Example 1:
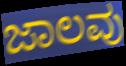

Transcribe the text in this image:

ಜಾಲವು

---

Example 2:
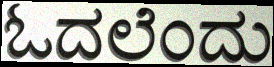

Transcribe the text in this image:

ಓದಲೆಂದು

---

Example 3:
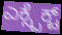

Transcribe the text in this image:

ಎಕ್ಸ್ಪೆಕ್ಟ್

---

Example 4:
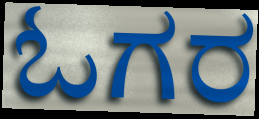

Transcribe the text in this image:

ಓಗರ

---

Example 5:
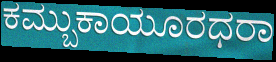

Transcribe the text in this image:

ಕಮ್ಬುಕಾಯೂರಧರಾ